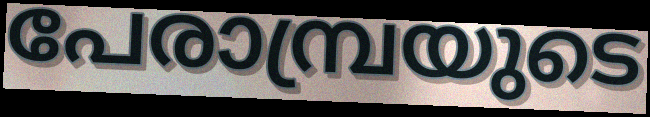
പേരാമ്പ്രയുടെ